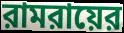
রামরায়ের